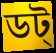
ডট্